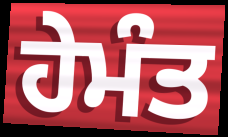
ਹੇਮੰਤ